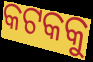
କଟକକୁ